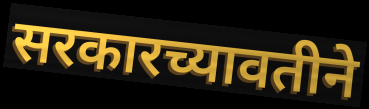
सरकारच्यावतीने